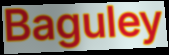
Baguley